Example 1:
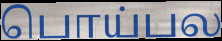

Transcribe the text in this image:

பொய்பல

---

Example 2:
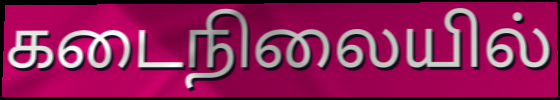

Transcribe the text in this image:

கடைநிலையில்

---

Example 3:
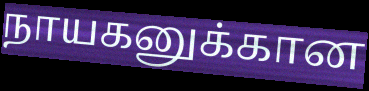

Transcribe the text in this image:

நாயகனுக்கான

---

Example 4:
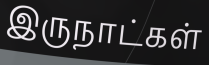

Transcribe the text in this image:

இருநாட்கள்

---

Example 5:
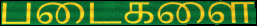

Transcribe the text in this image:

படைகளை